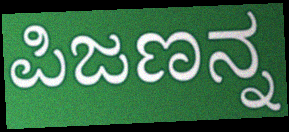
ಪಿಜಣನ್ನ